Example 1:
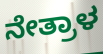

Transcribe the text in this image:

ನೇತ್ರಾಳ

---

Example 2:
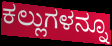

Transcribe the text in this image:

ಕಲ್ಲುಗಳನ್ನೂ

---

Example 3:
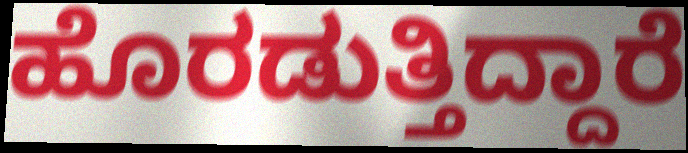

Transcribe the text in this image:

ಹೊರಡುತ್ತಿದ್ದಾರೆ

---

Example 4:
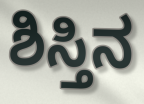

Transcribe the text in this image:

ಶಿಸ್ತಿನ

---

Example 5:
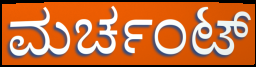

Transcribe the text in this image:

ಮರ್ಚಂಟ್